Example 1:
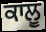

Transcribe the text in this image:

ਕਾਲੂ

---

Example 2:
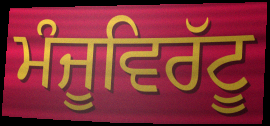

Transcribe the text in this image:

ਮੰਜੂਵਿਰੱਟੂ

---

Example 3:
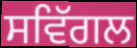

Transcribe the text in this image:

ਸਵਿੱਗਲ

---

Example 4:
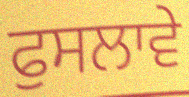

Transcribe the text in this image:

ਫੁਸਲਾਵੇ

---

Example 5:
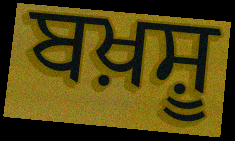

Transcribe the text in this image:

ਬਖ਼ਸ਼ੂ